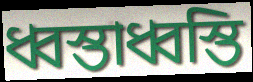
ধ্বস্তাধ্বস্তি